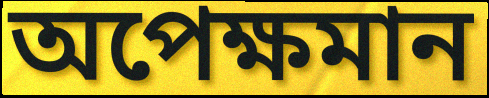
অপেক্ষমান